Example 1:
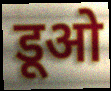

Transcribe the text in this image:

डूओ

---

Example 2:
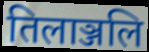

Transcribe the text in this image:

तिलाञ्जलि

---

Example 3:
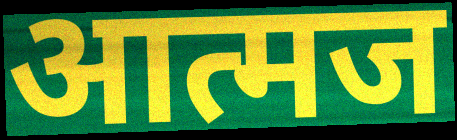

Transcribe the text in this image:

आत्मज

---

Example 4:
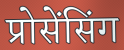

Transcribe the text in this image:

प्रोसेंसिंग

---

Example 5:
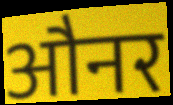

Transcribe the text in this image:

औनर